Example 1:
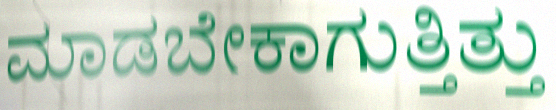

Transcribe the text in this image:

ಮಾಡಬೇಕಾಗುತ್ತಿತ್ತು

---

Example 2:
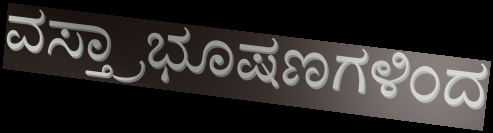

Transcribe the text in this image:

ವಸ್ತ್ರಾಭೂಷಣಗಳಿಂದ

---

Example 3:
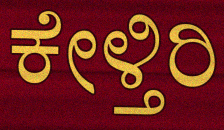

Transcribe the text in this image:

ಕೇಳ್ತಿರಿ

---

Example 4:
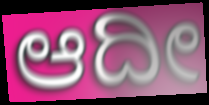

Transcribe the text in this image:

ಆದೀ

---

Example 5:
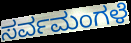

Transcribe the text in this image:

ಸರ್ವಮಂಗಳೆ